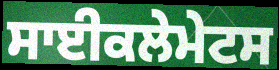
ਸਾਈਕਲੇਮੇਟਸ